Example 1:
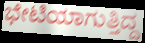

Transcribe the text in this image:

ಭೇಟಿಯಾಗುತ್ತಿದ್ದ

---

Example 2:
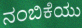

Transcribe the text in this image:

ನಂಬಿಕೆಯು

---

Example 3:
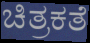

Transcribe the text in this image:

ಚಿತ್ರಕತೆ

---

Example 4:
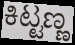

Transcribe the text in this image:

ಕಿಟ್ಟಣ್ಣ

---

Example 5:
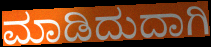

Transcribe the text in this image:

ಮಾಡಿದುದಾಗಿ